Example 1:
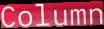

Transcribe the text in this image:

Column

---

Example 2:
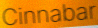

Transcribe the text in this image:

Cinnabar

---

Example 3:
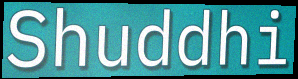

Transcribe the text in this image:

Shuddhi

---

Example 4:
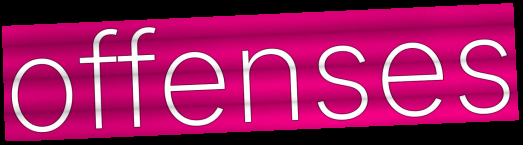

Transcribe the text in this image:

offenses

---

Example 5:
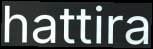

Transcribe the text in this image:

hattira